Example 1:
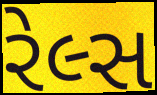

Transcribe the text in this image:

રેલ્સ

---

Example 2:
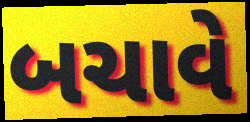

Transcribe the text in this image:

બચાવે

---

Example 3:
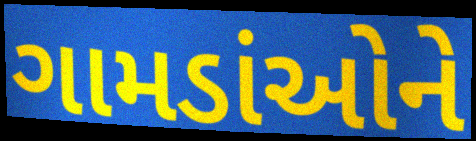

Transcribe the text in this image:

ગામડાંઓને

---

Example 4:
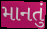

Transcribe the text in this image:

માનતું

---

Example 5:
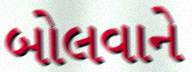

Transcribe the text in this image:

બોલવાને